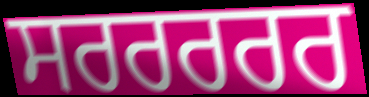
ਸਰਰਰਰਰ